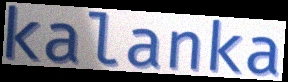
kalanka